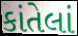
કાંતેલાં